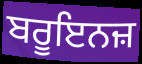
ਬਰੂਇਨਜ਼